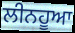
ਲੀਨਹੂਆ